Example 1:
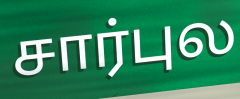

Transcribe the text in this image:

சார்புல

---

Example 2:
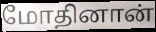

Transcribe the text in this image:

மோதினான்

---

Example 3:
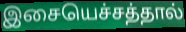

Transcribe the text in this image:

இசையெச்சத்தால்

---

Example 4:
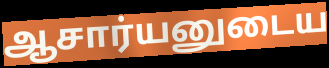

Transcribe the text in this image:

ஆசார்யனுடைய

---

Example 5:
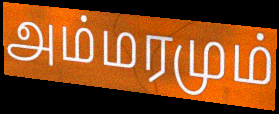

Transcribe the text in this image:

அம்மரமும்